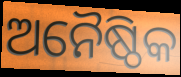
ଅନୈଷ୍ଠିକ